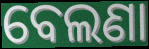
ବେଲଣା